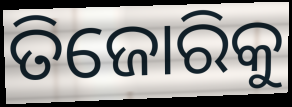
ତିଜୋରିକୁ